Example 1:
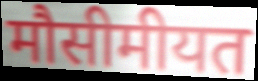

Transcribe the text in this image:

मौसीमीयत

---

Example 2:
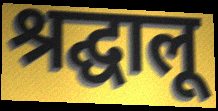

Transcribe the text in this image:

श्रद्घालू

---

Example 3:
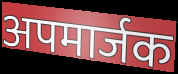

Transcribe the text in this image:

अपमार्जक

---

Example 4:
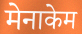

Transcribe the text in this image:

मेनाकेम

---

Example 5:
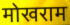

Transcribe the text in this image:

मोखराम